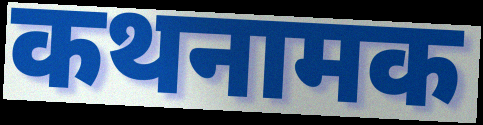
कथनामक